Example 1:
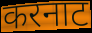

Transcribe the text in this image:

करनाट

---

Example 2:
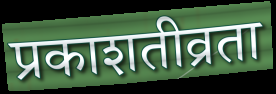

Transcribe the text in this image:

प्रकाशतीव्रता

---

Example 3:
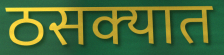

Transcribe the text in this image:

ठसक्यात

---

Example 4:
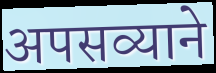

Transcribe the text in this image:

अपसव्याने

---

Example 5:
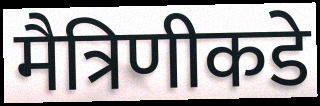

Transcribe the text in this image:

मैत्रिणीकडे